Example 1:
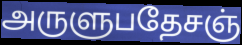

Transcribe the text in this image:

அருளுபதேசஞ்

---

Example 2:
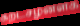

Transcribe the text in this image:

கறடசழனளக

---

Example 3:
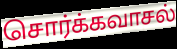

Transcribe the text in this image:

சொர்க்கவாசல்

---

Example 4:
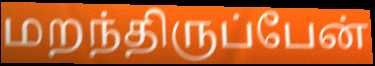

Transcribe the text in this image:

மறந்திருப்பேன்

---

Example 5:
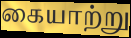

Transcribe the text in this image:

கையாற்று